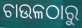
ଚାଉଳଠାରୁ